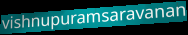
vishnupuramsaravanan